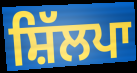
ਸ਼ਿੱਲਪਾ